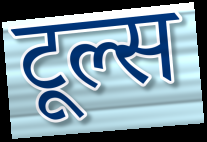
टूल्स